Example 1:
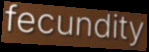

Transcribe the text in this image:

fecundity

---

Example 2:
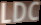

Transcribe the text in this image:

LDC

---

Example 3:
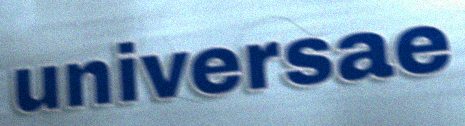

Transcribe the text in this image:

universae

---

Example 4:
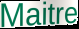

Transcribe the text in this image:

Maitre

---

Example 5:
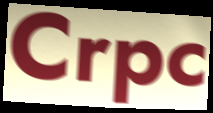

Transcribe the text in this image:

Crpc